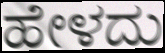
ಹೇಳದು